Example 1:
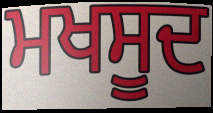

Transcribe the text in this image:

ਮਖਸੂਦ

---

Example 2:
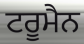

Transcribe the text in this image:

ਟਰੂਮੈਨ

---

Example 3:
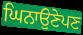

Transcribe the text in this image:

ਘਿਨਾਉਣੇਪਣ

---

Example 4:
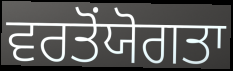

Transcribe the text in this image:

ਵਰਤੋਂਯੋਗਤਾ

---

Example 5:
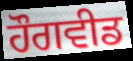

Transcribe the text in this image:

ਹੌਗਵੀਡ